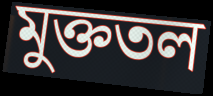
মুক্ততল